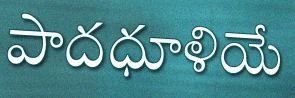
పాదధూళియే